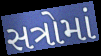
સત્રોમાં